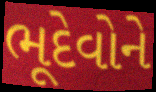
ભૂદેવોને